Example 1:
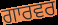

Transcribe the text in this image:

ਗਾਰਵਰ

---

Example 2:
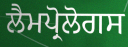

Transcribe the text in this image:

ਲੈਮਪ੍ਰੋਲੋਗਸ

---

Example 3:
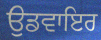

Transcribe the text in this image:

ਉਡਵਾਇਰ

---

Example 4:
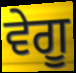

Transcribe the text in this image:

ਵੇਗੂ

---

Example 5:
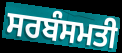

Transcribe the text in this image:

ਸਰਬੰਸਮਤੀ